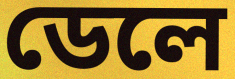
ডেলে